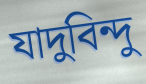
যাদুবিন্দু